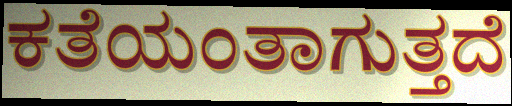
ಕತೆಯಂತಾಗುತ್ತದೆ